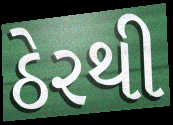
ઠેરથી